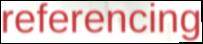
referencing